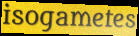
isogametes